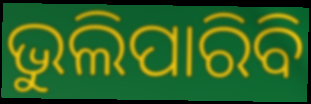
ଭୁଲିପାରିବି